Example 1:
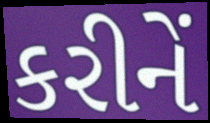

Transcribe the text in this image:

કરીનેં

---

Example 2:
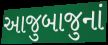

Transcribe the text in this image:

આજુબાજુનાં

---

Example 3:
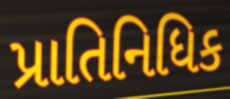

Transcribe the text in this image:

પ્રાતિનિધિક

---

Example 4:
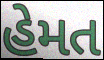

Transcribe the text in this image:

હેમત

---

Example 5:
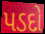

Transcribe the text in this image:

પડદો